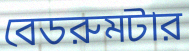
বেডরুমটার